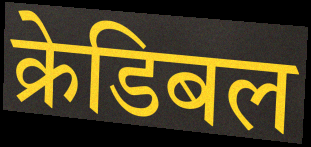
क्रेडिबल